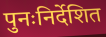
पुनःनिर्देशित